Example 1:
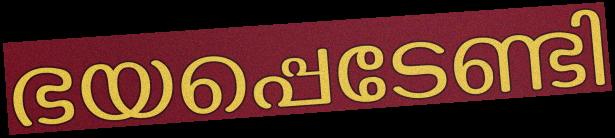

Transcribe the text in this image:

ഭയപ്പെടേണ്ടി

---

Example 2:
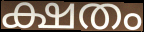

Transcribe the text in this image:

ക്ഷതം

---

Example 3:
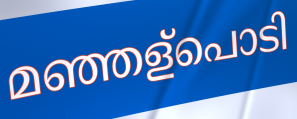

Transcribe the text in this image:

മഞ്ഞള്പൊടി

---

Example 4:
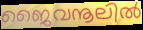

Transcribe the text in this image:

ജൈവനൂലിൽ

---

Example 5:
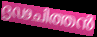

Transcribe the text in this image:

ദൃഢചിത്തൻ